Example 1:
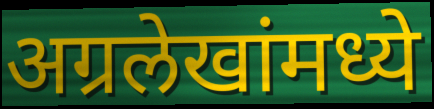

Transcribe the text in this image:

अग्रलेखांमध्ये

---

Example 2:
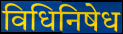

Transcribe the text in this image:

विधिनिषेध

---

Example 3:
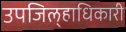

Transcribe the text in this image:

उपजिल्हाधिकारी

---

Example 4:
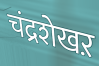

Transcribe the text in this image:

चंद्रशेखऱ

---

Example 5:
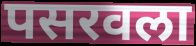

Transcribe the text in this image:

पसरवला